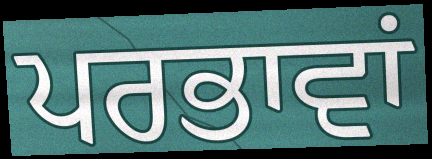
ਪਰਭਾਵਾਂ